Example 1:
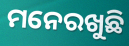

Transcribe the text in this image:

ମନେରଖୁଛି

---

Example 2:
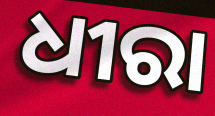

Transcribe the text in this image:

ଧୀରା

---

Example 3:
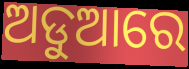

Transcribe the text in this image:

ଅଡୁଆରେ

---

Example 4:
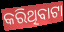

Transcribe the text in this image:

କରିଥିବାଟା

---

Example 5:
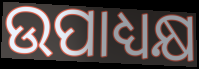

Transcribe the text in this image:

ଉପାଧ୍ୟକ୍ଷ